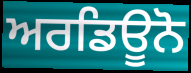
ਅਰਡਿਊਨੋ